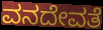
ವನದೇವತೆ